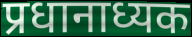
प्रधानाध्यक